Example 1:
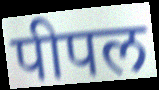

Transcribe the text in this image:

पीपल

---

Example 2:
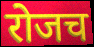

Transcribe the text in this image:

रोजच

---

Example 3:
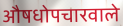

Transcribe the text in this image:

औषधोपचारवाले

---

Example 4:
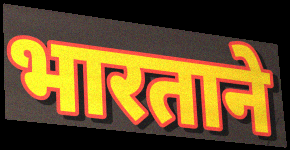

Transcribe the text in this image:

भारताने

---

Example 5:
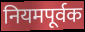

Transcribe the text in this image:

नियमपूर्वक